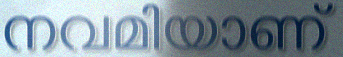
നവമിയാണ്